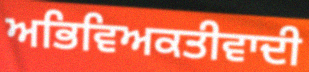
ਅਭਿਵਿਅਕਤੀਵਾਦੀ